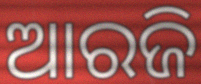
ଆରଜି